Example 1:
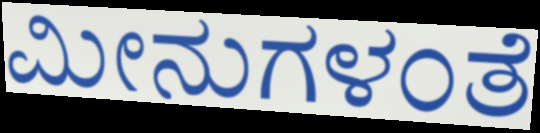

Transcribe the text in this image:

ಮೀನುಗಳಂತೆ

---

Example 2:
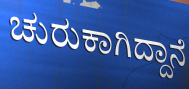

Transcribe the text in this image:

ಚುರುಕಾಗಿದ್ದಾನೆ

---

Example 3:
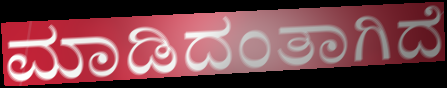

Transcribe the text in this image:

ಮಾಡಿದಂತಾಗಿದೆ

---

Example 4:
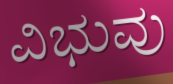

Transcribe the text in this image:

ವಿಭುವು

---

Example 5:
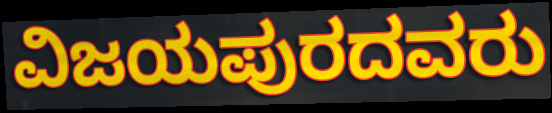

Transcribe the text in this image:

ವಿಜಯಪುರದವರು